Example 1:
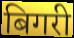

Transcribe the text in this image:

बिगरी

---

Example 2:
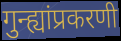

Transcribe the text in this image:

गुन्ह्यांप्रकरणी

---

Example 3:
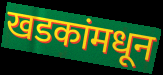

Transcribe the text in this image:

खडकांमधून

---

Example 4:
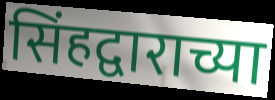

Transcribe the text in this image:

सिंहद्वाराच्या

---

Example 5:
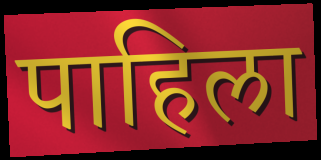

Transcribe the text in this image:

पाहिला